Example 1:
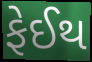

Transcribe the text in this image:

ફેઈથ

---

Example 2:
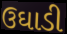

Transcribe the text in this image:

ઉઘાડી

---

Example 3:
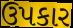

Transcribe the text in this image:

ઉપકાર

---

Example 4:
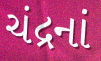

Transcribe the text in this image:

ચંદ્રનાં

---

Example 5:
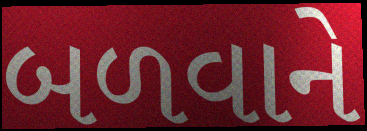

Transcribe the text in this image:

બળવાને